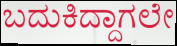
ಬದುಕಿದ್ದಾಗಲೇ